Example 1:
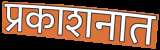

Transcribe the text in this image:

प्रकाशनात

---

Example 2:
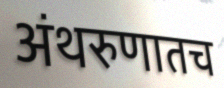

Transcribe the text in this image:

अंथरुणातच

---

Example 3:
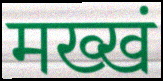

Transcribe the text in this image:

मख्खं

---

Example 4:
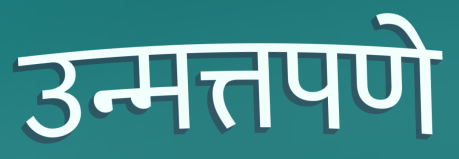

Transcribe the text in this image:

उन्मत्तपणे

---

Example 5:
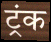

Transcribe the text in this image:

ट्रंक